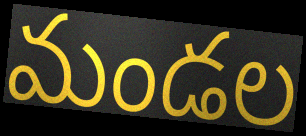
మండల